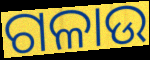
ଗଳାଉ